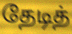
தேடித்